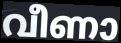
വീണാ